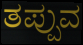
ತಪ್ಪುವ